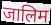
जालिम